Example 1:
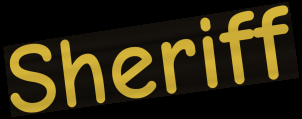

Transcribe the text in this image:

Sheriff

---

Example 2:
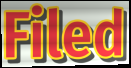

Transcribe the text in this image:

Filed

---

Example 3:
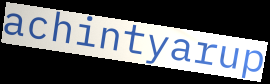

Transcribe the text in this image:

achintyarup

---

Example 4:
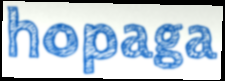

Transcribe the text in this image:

hopaga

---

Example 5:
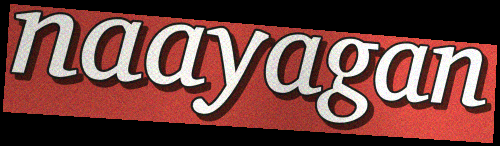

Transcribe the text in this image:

naayagan